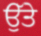
ਉੱਤੇ